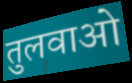
तुलवाओ